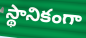
స్థానికంగా